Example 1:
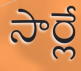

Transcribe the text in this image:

సార్లే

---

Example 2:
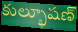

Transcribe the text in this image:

కుల్భూషణ్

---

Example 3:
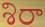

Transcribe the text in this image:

శిరా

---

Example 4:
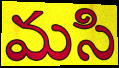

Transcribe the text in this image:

మసి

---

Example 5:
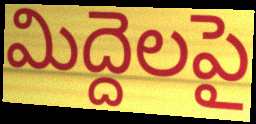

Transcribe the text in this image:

మిద్దెలపై